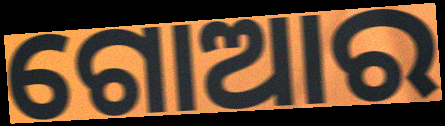
ଗୋଆର